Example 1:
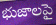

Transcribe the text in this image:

భుజాలపై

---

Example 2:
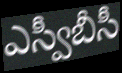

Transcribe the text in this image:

ఎస్వీబీసీ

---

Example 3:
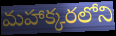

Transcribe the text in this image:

మహాక్కరలోని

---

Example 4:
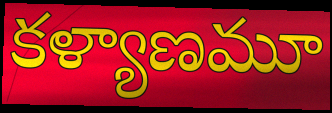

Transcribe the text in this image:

కళ్యాణమూ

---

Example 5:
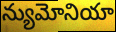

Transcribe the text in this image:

న్యుమోనియా